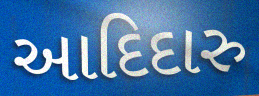
આદિદારુ